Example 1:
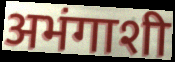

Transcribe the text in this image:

अभंगाशी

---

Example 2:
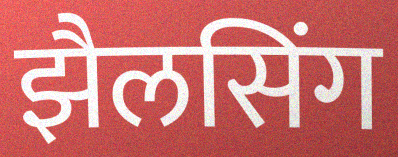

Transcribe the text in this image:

झैलसिंग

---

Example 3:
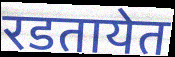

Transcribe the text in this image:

रडतायेत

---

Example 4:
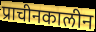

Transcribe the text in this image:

प्राचीनकालीन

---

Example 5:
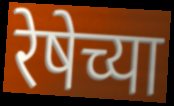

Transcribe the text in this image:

रेषेच्या